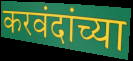
करवंदांच्या